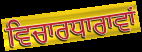
ਵਿਚਾਰਧਾਰਾਵਾਂ